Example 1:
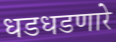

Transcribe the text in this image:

धडधडणारे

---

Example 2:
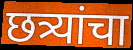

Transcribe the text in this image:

छत्र्यांचा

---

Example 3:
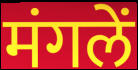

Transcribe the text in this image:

मंगलें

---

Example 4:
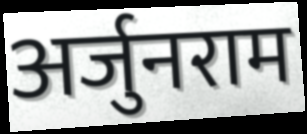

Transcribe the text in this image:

अर्जुनराम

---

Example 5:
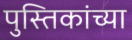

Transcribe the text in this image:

पुस्तिकांच्या